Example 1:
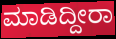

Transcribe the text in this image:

ಮಾಡಿದ್ದೀರಾ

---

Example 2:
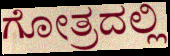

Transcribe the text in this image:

ಗೋತ್ರದಲ್ಲಿ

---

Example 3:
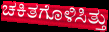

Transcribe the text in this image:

ಚಕಿತಗೊಳಿಸಿತ್ತು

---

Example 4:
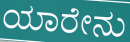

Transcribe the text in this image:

ಯಾರೇನು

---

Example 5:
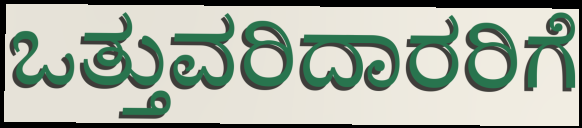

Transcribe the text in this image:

ಒತ್ತುವರಿದಾರರಿಗೆ